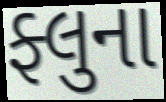
ફ્લુના